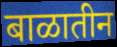
बाळातीन